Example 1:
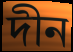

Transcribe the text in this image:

দীন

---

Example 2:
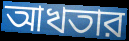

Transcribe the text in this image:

আখতার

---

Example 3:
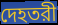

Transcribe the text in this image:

দেহতরী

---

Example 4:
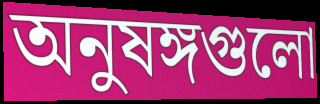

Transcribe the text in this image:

অনুষঙ্গগুলো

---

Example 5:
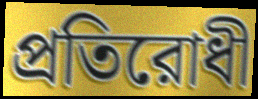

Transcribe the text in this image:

প্রতিরোধী